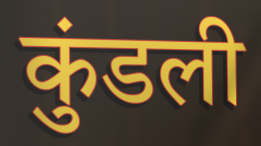
कुंडली